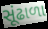
સૂંઢાળા